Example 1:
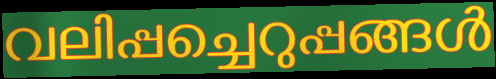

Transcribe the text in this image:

വലിപ്പച്ചെറുപ്പങ്ങൾ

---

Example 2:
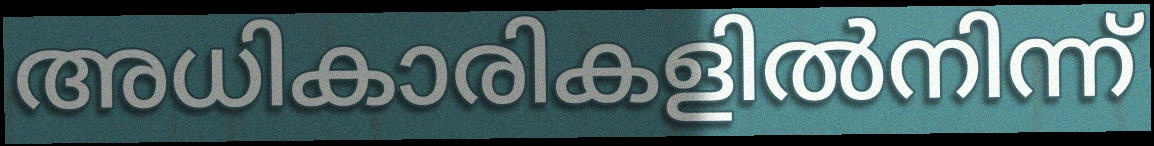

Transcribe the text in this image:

അധികാരികളിൽനിന്ന്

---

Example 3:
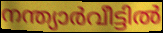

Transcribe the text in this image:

നന്ത്യാർവീട്ടിൽ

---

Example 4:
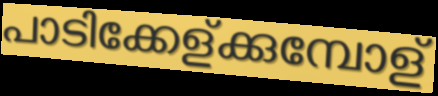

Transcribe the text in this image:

പാടിക്കേള്ക്കുമ്പോള്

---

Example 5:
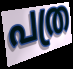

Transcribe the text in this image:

പത്ര